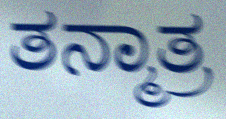
ತನ್ಮಾತ್ರ